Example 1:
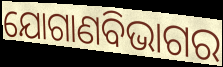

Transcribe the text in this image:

ଯୋଗାଣବିଭାଗର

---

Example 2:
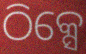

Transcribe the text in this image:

ଠିକ୍ସେ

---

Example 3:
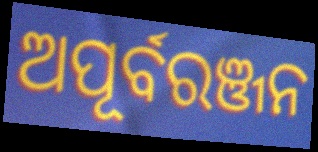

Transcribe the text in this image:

ଅପୂର୍ବରଞ୍ଜନ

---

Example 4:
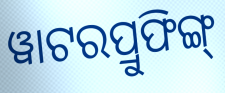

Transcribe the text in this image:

ୱାଟରପ୍ରୁଫିଙ୍ଗ୍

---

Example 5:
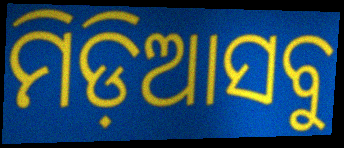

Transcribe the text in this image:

ମିଡ଼ିଆସବୁ